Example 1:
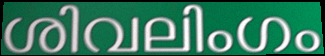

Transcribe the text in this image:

ശിവലിംഗം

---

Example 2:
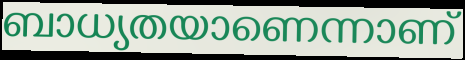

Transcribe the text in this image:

ബാധ്യതയാണെന്നാണ്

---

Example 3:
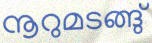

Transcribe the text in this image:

നൂറുമടങ്ങു്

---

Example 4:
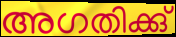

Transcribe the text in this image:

അഗതിക്കു്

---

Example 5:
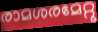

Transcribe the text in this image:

രാമശരമേറ്റു